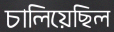
চালিয়েছিল